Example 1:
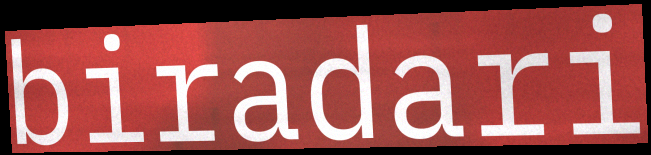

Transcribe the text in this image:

biradari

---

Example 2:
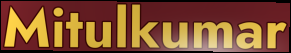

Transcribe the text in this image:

Mitulkumar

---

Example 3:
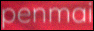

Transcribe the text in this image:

penmai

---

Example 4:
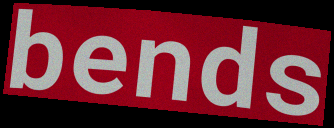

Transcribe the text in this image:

bends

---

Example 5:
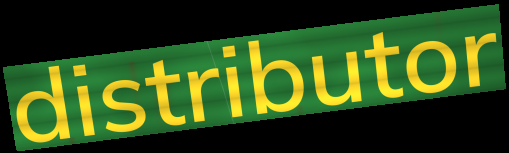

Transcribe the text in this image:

distributor